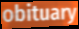
obituary